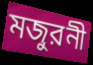
মজুরনী